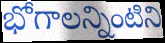
భోగాలన్నింటిని